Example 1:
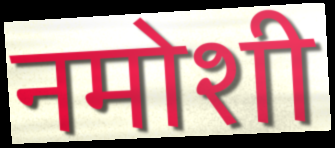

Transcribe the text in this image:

नमोशी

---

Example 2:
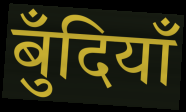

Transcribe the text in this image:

बुँदियाँ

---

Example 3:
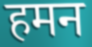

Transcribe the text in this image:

हमन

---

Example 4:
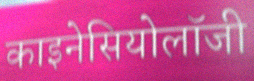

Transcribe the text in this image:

काइनेसियोलॉजी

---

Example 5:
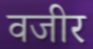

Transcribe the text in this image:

वजीर